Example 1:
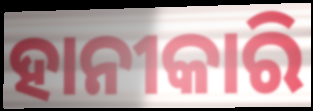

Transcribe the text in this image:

ହାନୀକାରି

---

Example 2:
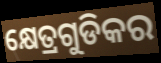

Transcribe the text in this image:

କ୍ଷେତ୍ରଗୁଡିକର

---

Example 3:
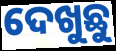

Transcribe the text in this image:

ଦେଖୁଛୁ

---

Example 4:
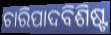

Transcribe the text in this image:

ଚାରିପାଦବିଶିଷ୍ଟ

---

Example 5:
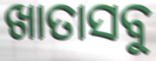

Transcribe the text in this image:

ଖାତାସବୁ